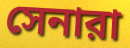
সেনারা